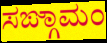
ಸಙ್ಗಾಮಂ